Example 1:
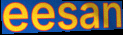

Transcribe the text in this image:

eesan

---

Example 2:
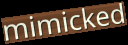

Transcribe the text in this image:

mimicked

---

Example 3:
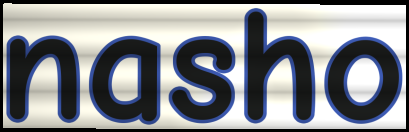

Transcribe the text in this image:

nasho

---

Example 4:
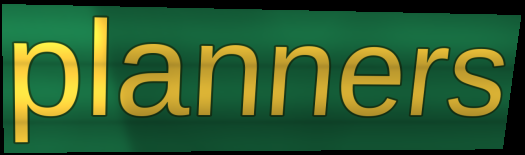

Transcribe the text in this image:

planners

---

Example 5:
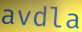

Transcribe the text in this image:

avdla